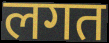
लगत